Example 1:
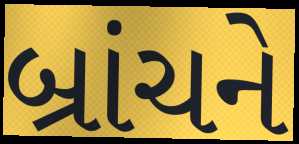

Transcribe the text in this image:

બ્રાંચને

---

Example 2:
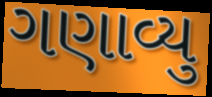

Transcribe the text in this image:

ગણાવ્યુ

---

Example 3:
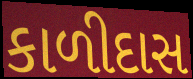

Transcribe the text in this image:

કાળીદાસ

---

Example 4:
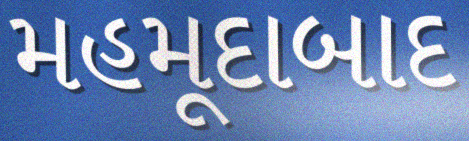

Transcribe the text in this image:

મહમૂદાબાદ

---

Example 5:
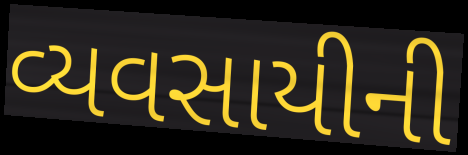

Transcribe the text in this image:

વ્યવસાયીની